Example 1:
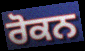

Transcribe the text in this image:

ਰੋਕਨ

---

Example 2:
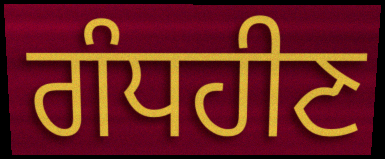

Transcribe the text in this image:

ਗੰਧਹੀਣ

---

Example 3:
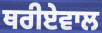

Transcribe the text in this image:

ਥਰੀਏਵਾਲ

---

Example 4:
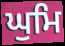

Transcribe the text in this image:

ਘੁਮਿ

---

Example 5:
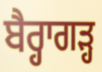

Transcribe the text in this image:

ਬੈਰ੍ਹਾਗੜ੍ਹ